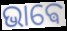
ଭାଵେ